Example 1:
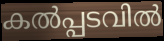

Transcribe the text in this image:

കൽപ്പടവിൽ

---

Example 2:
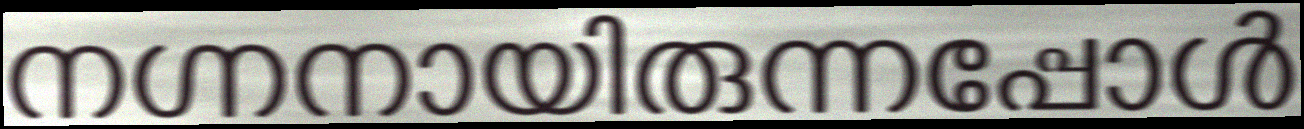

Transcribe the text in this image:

നഗ്നനായിരുന്നപ്പോൾ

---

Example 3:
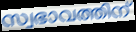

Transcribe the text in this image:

സ്വഭാവത്തിന്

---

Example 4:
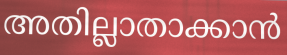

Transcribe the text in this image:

അതില്ലാതാക്കാൻ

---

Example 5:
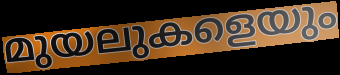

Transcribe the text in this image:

മുയലുകളെയും